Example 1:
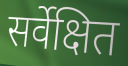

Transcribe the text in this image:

सर्वेक्षित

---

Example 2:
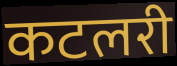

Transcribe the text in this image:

कटलरी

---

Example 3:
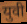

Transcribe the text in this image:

युवी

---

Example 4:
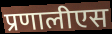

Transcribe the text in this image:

प्रणालीएस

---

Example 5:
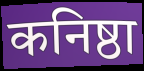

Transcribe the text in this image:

कनिष्ठा